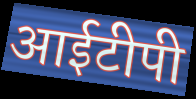
आईटीपी